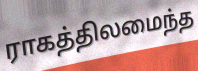
ராகத்திலமைந்த